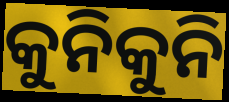
କୁନିକୁନି